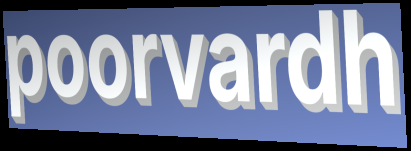
poorvardh